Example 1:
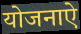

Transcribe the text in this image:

योजनाऐ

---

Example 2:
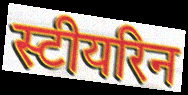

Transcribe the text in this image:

स्टीयरिन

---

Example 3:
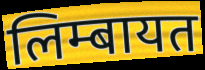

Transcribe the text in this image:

लिम्बायत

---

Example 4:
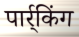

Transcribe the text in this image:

पार्र्किंग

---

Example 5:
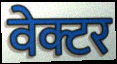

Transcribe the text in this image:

वेक्टर